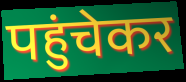
पहुंचेकर